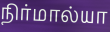
நிர்மால்யா